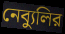
নেব্যুলির